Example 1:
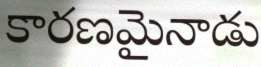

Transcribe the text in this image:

కారణమైనాడు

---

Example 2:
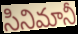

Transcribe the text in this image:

సినిమానీ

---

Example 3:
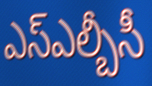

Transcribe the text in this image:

ఎస్ఎల్బీసీ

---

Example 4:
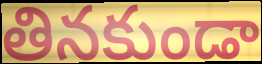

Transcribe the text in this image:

తినకుండా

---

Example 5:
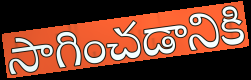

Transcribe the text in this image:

సాగించడానికి